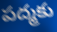
పద్మకు